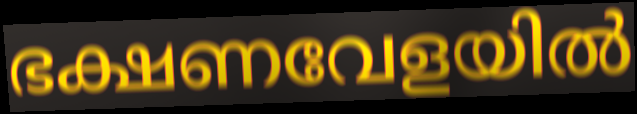
ഭക്ഷണവേളയിൽ